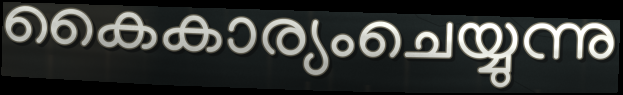
കൈകാര്യംചെയ്യുന്നു